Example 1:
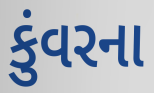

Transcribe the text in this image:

કુંવરના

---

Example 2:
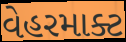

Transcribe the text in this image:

વેહરમાક્ટ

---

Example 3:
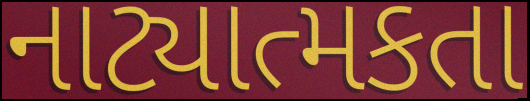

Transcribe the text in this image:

નાટ્યાત્મકતા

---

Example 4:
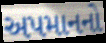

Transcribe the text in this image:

અપમાનનો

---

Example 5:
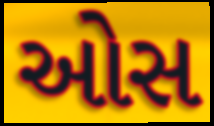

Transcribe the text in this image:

ઓસ